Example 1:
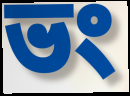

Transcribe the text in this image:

ভং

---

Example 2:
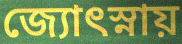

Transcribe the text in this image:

জ্যোৎস্নায়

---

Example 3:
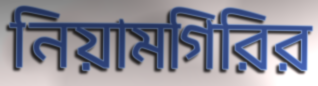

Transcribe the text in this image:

নিয়ামগিরির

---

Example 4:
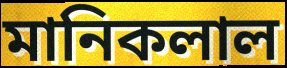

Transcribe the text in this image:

মানিকলাল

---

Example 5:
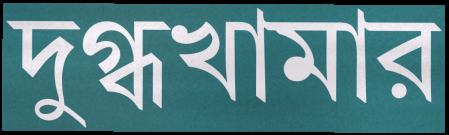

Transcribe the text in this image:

দুগ্ধখামার